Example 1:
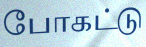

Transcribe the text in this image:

போகட்டு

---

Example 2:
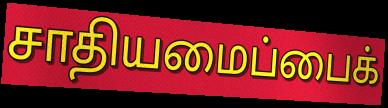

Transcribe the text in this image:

சாதியமைப்பைக்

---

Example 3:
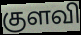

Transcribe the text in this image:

குளவி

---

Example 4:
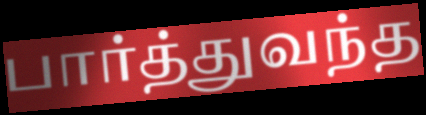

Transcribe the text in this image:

பார்த்துவந்த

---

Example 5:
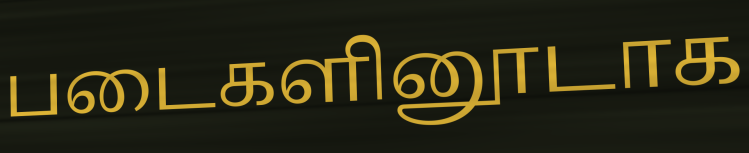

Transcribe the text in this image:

படைகளினூடாக